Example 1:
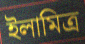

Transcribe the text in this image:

ইলামিত্র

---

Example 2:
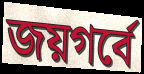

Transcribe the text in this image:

জয়গর্বে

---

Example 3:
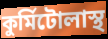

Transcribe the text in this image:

কুর্মিটোলাস্থ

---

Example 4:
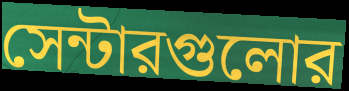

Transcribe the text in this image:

সেন্টারগুলোর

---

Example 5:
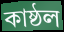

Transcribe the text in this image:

কাষ্ঠল